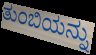
ತುಂಬಿಯನ್ನು